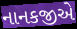
નાનકજીએ